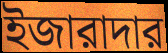
ইজারাদার